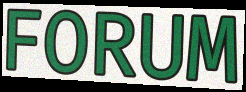
FORUM